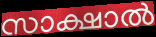
സാക്ഷാൽ